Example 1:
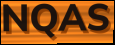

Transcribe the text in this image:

NQAS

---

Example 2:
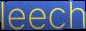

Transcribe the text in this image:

leech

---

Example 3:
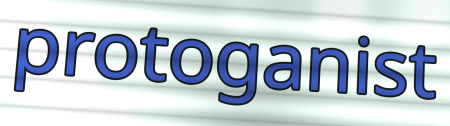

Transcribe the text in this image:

protoganist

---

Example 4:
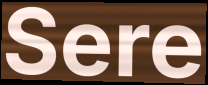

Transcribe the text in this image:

Sere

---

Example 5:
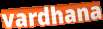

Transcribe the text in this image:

vardhana